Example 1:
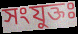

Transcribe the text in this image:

সংযুক্তঃ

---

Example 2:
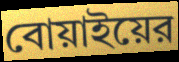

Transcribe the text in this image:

বোয়াইয়ের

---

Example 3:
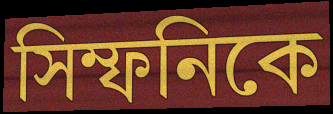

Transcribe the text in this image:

সিম্ফনিকে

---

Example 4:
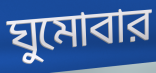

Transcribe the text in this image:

ঘুমোবার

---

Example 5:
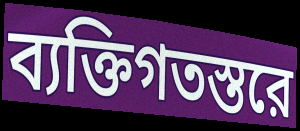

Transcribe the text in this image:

ব্যক্তিগতস্তরে